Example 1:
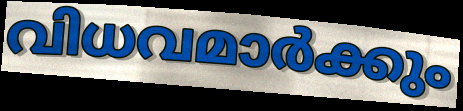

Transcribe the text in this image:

വിധവമാർക്കും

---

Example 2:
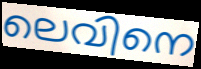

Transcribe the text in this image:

ലെവിനെ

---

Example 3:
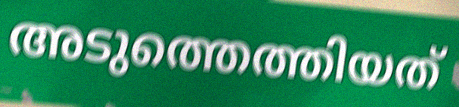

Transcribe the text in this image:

അടുത്തെത്തിയത്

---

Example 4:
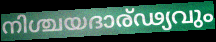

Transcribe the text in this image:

നിശ്ചയദാര്ഢ്യവും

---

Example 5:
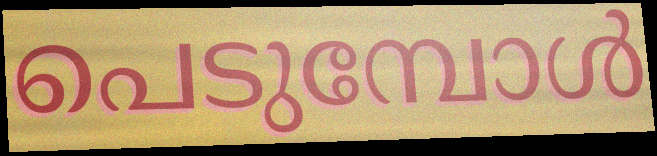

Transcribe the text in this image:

പെടുമ്പോൾ